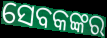
ସେବକଙ୍କର